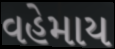
વહેમાય